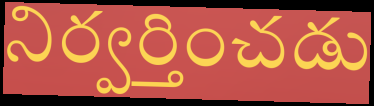
నిర్వర్తించడు